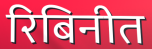
रिबिनीत